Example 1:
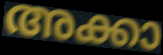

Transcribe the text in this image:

അക്കാ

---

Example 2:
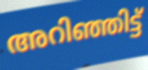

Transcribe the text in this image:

അറിഞ്ഞിട്ട്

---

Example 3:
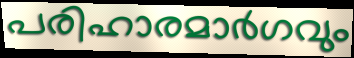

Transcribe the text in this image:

പരിഹാരമാർഗവും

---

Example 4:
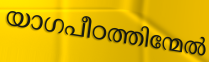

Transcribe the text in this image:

യാഗപീഠത്തിന്മേൽ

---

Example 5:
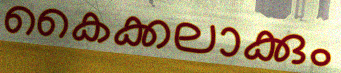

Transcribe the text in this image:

കൈക്കലാക്കും